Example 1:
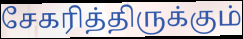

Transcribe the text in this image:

சேகரித்திருக்கும்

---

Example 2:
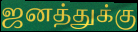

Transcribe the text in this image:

ஜனத்துக்கு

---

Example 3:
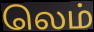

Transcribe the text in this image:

லெம்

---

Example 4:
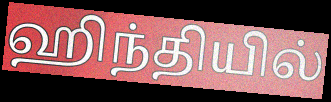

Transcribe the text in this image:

ஹிந்தியில்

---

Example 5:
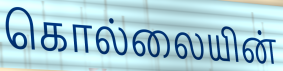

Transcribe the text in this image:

கொல்லையின்